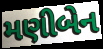
મણીબેન